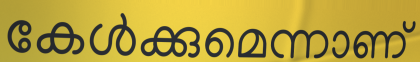
കേൾക്കുമെന്നാണ്